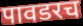
पावडरच